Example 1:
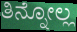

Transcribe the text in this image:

ತಿನ್ನೋಲ್ಲ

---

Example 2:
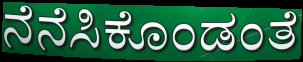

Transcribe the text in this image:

ನೆನೆಸಿಕೊಂಡಂತೆ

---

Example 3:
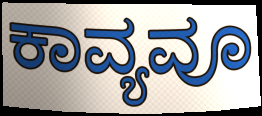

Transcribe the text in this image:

ಕಾವ್ಯವೂ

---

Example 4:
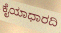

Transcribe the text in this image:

ಕೈಯಾಧಾರದಿ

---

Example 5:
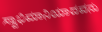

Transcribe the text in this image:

ಸ್ವಾಭಿಮಾನಿಯಾದವನು